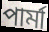
পার্মা